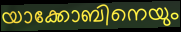
യാക്കോബിനെയും